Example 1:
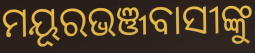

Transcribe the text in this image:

ମୟୂରଭଞ୍ଜବାସୀଙ୍କୁ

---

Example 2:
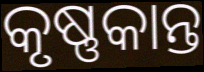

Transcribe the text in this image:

କୃଷ୍ଣକାନ୍ତ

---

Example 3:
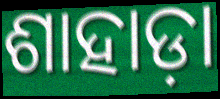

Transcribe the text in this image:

ଶାହାଡ଼ା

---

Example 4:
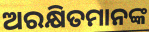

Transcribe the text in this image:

ଅରକ୍ଷିତମାନଙ୍କ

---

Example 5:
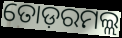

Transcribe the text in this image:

ତୋଡ଼ରମଲ୍ଲ